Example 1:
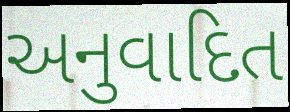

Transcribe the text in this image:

અનુવાદિત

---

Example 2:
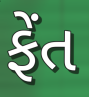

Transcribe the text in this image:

ફેંત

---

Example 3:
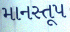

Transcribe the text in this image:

માનસ્તૂપ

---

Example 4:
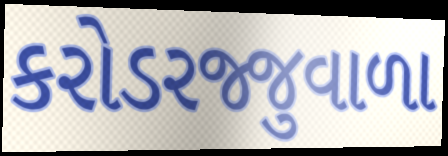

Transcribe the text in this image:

કરોડરજ્જુવાળા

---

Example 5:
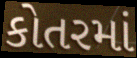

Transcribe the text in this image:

કોતરમાં